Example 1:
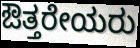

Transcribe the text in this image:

ಔತ್ತರೇಯರು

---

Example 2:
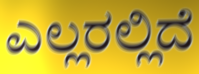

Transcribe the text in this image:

ಎಲ್ಲರಲ್ಲಿದೆ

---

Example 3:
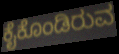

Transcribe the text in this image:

ಕೈಕೊಂಡಿರುವ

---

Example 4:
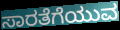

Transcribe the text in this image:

ಸಾರತೆಗೆಯುವ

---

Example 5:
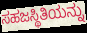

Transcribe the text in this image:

ಸಹಜಸ್ಥಿತಿಯನ್ನು